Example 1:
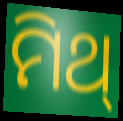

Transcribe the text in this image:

ମିଥ୍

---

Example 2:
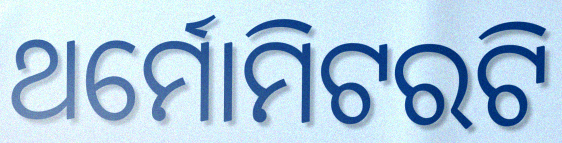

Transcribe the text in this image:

ଥର୍ମୋମିଟରଟି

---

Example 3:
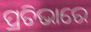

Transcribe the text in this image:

ପ୍ରତିଭାରେ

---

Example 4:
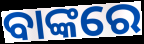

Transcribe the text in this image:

ବାଙ୍କରେ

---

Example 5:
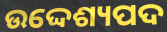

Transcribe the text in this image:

ଉଦ୍ଦେଶ୍ୟପଦ